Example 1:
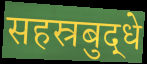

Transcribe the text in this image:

सहस्रबुद्धे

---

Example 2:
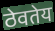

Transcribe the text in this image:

ठेवतेय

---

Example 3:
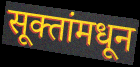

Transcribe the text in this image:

सूक्तांमधून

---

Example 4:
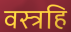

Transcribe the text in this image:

वस्त्रहि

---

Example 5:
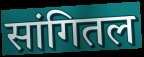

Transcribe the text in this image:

सांगितल